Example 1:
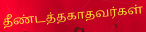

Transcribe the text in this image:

தீண்டத்தகாதவர்கள்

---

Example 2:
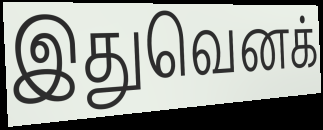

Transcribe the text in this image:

இதுவெனக்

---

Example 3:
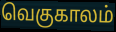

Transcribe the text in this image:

வெகுகாலம்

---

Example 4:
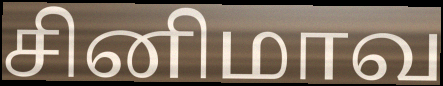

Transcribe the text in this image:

சினிமாவ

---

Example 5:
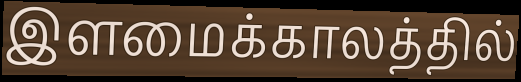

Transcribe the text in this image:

இளமைக்காலத்தில்